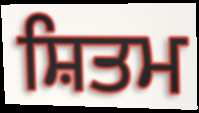
ਸ਼ਿਤਮ